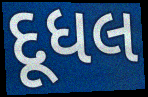
દૂધલ